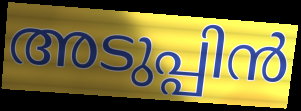
അടുപ്പിൻ